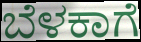
ಬೆಳಕಾಗೆ